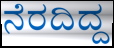
ನೆರದಿದ್ದ